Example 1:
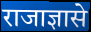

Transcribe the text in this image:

राजाज्ञासे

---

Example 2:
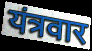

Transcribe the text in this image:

यंत्रवार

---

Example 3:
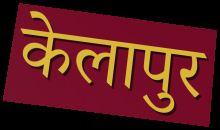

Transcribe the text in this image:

केलापुर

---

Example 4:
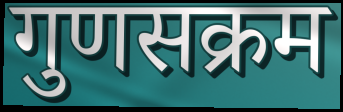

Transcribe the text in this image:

गुणसक्रम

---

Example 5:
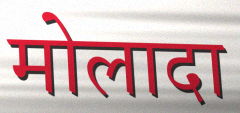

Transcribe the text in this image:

मोलादा